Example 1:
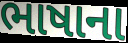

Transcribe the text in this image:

ભાષાના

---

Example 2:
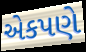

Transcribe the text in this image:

એકપણે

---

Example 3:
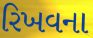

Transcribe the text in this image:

રિખવના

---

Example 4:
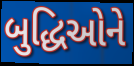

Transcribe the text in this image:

બુદ્ધિઓને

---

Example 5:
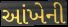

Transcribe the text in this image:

આંખેની